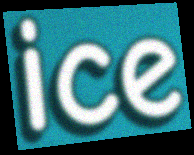
ice